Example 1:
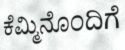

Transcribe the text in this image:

ಕೆಮ್ಮಿನೊಂದಿಗೆ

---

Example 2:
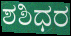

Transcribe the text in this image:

ಶಶಿಧರ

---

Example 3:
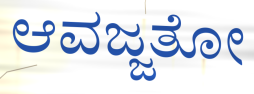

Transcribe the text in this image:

ಆವಜ್ಜತೋ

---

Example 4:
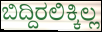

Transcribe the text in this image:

ಬಿದ್ದಿರಲಿಕ್ಕಿಲ್ಲ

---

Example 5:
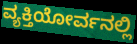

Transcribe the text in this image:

ವ್ಯಕ್ತಿಯೋರ್ವನಲ್ಲಿ